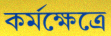
কর্মক্ষেত্রে